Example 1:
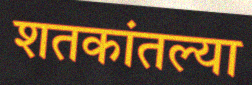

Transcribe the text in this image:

शतकांतल्या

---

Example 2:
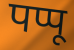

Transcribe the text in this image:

पप्पू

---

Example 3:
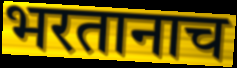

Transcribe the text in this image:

भरतानाच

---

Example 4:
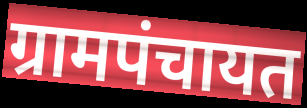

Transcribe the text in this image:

ग्रामपंचायत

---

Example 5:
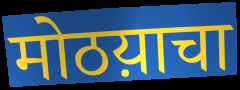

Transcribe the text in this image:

मोठय़ाचा